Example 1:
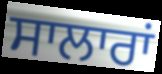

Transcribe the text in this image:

ਸਾਲਾਰਾਂ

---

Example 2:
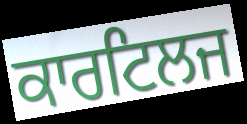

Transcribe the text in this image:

ਕਾਰਟਿਲਜ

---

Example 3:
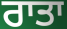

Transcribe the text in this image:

ਰਾਤਾ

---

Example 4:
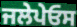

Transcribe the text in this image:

ਜਲੇਪੇਓਸ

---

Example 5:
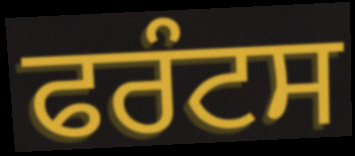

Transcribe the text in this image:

ਫਰੰਟਸ